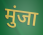
मुंजा